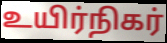
உயிர்நிகர்